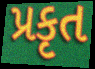
પ્રકૃત